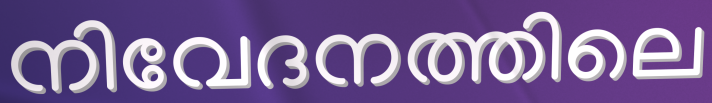
നിവേദനത്തിലെ